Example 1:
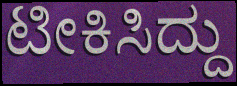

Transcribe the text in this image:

ಟೀಕಿಸಿದ್ದು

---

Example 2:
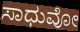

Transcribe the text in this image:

ಸಾಧುವೋ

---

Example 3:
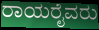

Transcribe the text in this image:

ರಾಯರೈವರು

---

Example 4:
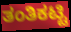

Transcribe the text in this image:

ತಂತಿಕಟ್ಟಿ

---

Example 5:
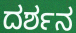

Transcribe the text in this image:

ದರ್ಶನ